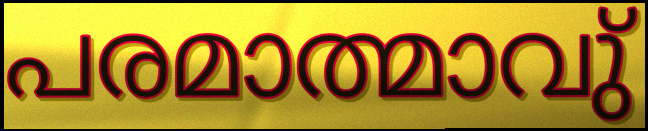
പരമാത്മാവു്